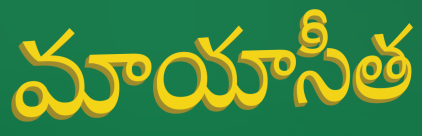
మాయాసీత